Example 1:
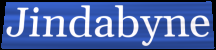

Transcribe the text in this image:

Jindabyne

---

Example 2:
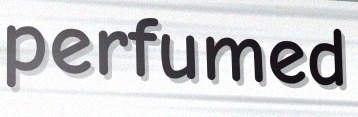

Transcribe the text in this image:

perfumed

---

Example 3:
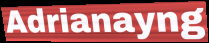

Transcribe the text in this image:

Adrianayng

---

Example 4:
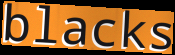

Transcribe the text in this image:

blacks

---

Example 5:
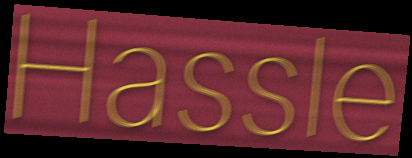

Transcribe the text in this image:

Hassle